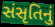
સંસૃતિનું